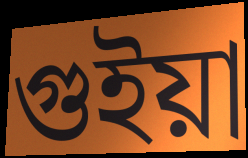
গুইয়া